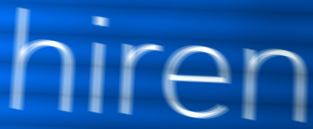
hiren